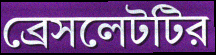
ব্রেসলেটটির